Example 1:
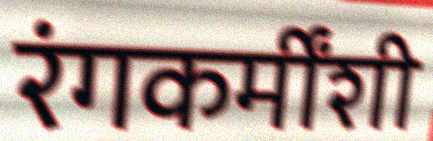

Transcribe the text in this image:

रंगकर्मींशी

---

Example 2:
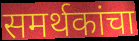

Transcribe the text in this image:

समर्थकांचा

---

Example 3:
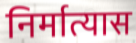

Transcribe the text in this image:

निर्मात्यास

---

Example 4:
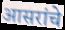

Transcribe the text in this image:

आसरांचे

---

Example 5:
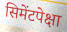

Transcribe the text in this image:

सिमेंटपेक्षा